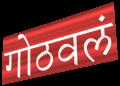
गोठवलं